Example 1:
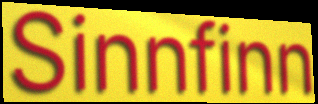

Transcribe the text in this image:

Sinnfinn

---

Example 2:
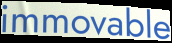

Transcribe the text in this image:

immovable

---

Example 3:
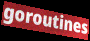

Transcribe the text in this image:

goroutines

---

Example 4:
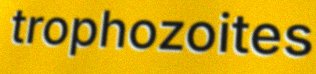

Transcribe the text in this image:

trophozoites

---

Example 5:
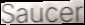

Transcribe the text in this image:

Saucer